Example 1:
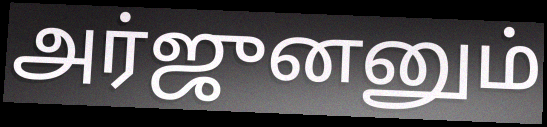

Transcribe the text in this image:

அர்ஜுனனும்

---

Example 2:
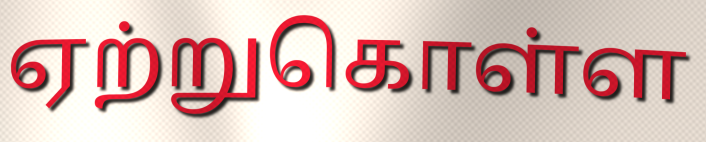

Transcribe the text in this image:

ஏற்றுகொள்ள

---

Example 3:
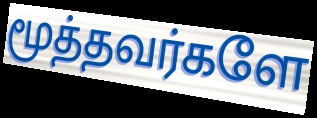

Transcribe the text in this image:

மூத்தவர்களே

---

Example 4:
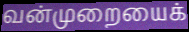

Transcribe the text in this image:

வன்முறையைக்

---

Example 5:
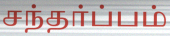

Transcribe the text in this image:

சந்தர்ப்பம்